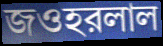
জওহরলাল